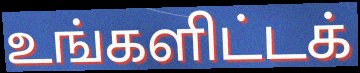
உங்களிட்டக்